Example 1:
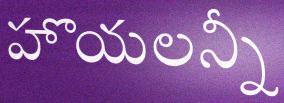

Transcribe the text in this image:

హొయలన్నీ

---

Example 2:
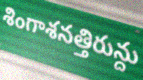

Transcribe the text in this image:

శింగాశనత్తిరున్దు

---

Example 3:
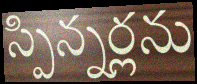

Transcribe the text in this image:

స్పిన్నర్లను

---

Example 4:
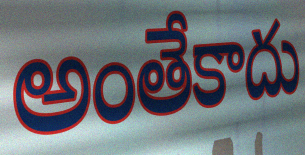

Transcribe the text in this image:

అంతేకాదు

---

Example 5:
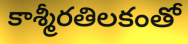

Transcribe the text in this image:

కాశ్మీరతిలకంతో